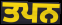
ਤਪਨ